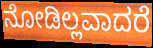
ನೋಡಿಲ್ಲವಾದರೆ